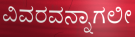
ವಿವರವನ್ನಾಗಲೀ